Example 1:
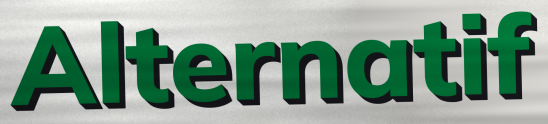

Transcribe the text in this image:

Alternatif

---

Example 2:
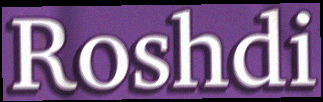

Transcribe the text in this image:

Roshdi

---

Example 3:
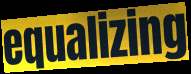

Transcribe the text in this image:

equalizing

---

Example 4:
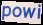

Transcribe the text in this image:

powi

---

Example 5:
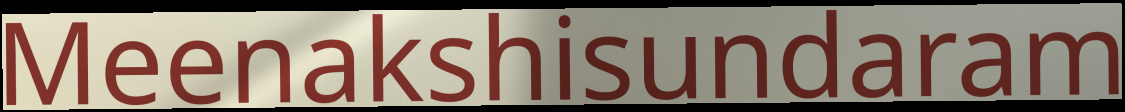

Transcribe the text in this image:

Meenakshisundaram